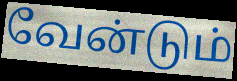
வேன்டும்